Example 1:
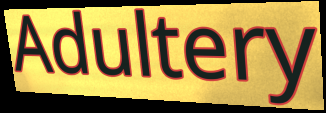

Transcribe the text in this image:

Adultery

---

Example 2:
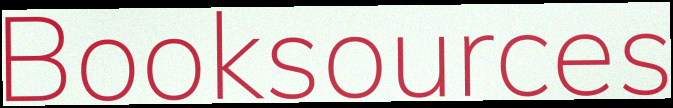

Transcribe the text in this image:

Booksources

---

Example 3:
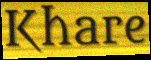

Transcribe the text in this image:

Khare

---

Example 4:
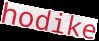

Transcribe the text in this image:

hodike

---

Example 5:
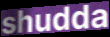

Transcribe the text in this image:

shudda